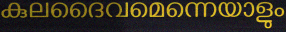
കുലദൈവമെന്നെയാളും